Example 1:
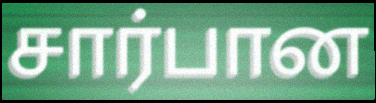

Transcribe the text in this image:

சார்பான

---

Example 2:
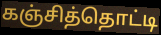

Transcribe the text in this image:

கஞ்சித்தொட்டி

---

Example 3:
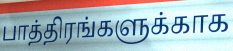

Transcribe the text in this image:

பாத்திரங்களுக்காக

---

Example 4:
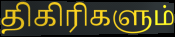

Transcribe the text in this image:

திகிரிகளும்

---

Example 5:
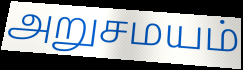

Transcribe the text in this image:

அறுசமயம்